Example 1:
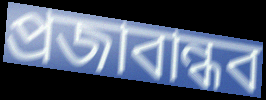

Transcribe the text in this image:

প্রজাবান্ধব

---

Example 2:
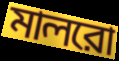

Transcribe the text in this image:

মালরো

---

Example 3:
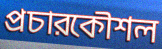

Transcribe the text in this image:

প্রচারকৌশল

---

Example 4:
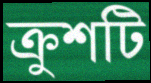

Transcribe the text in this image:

ক্রুশটি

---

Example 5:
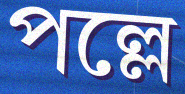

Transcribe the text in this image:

পল্লে